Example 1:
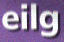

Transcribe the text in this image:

eilg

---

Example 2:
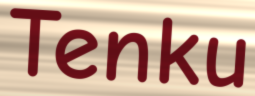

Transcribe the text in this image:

Tenku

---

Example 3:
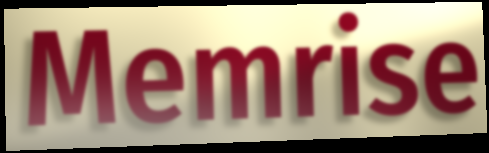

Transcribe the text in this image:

Memrise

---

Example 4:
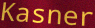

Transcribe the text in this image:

Kasner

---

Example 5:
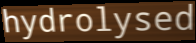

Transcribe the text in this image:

hydrolysed